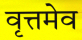
वृत्तमेव